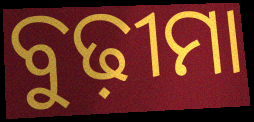
ବୁଢ଼ୀମା